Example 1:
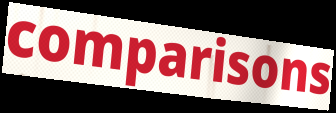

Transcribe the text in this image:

comparisons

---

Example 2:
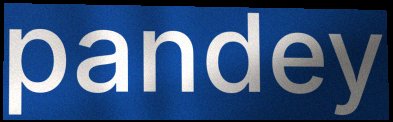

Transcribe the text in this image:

pandey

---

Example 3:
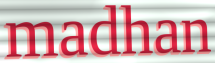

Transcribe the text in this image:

madhan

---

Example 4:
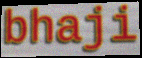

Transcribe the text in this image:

bhaji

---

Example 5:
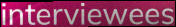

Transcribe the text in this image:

interviewees